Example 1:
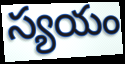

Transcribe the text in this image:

స్యయం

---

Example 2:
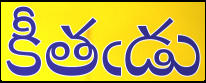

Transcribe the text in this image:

కీతఁడు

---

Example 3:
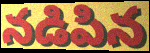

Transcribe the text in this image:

నడిపిన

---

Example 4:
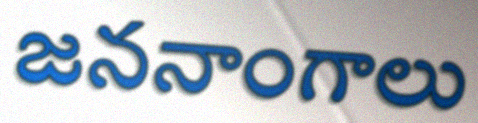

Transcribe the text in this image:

జననాంగాలు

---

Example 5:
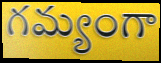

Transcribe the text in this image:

గమ్యంగా